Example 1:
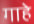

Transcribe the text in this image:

गाहे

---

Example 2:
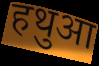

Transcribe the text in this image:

हथुआ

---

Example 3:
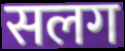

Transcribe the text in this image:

सलग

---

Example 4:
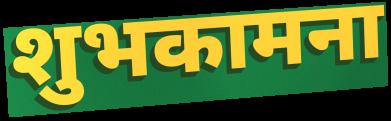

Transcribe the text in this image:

शुभकामना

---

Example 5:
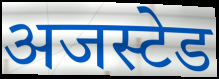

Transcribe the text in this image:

अजस्टेड